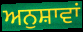
ਅਨੁਸ਼ਾਵਾਂ